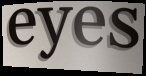
eyes